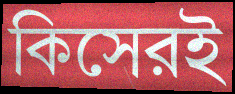
কিসেরই